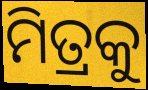
ମିତ୍ରକୁ